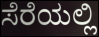
ಸೆರೆಯಲ್ಲಿ